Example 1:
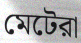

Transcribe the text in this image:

মেটেরা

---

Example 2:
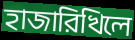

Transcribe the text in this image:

হাজারিখিলে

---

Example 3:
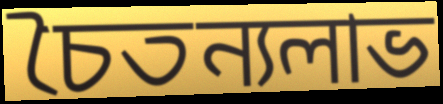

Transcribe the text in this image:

চৈতন্যলাভ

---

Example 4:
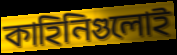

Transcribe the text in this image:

কাহিনিগুলোই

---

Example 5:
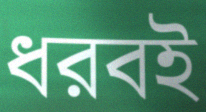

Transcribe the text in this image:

ধরবই